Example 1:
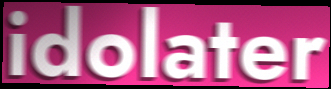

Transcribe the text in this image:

idolater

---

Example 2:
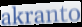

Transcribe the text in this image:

akranto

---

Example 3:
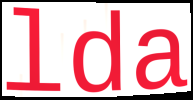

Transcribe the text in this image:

lda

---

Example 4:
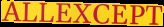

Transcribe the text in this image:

ALLEXCEPT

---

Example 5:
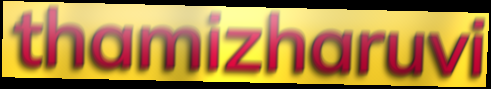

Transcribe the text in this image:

thamizharuvi